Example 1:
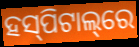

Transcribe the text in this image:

ହସ୍‌ପିଟାଲ୍‌ରେ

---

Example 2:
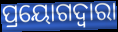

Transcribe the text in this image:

ପ୍ରୟୋଗଦ୍ୱାରା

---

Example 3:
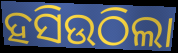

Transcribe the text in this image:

ହସିଉଠିଲା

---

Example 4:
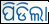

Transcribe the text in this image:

ପିଡିଲା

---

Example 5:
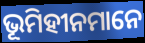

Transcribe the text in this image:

ଭୂମିହୀନମାନେ